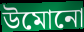
উমোনো